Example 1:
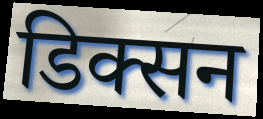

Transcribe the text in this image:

डिक्सन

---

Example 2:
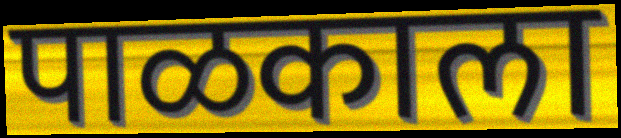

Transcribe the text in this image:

पाळकाला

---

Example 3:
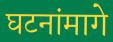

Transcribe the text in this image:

घटनांमागे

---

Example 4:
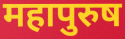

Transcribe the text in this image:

महापुरुष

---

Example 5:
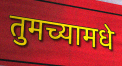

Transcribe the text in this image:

तुमच्यामधे